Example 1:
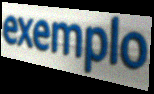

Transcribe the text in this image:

exemplo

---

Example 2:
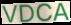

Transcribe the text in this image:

VDCA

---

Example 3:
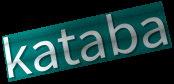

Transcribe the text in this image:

kataba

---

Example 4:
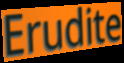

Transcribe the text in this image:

Erudite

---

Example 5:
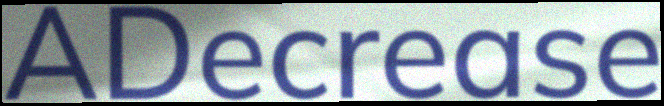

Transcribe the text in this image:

ADecrease